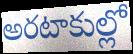
అరటాకుల్లో